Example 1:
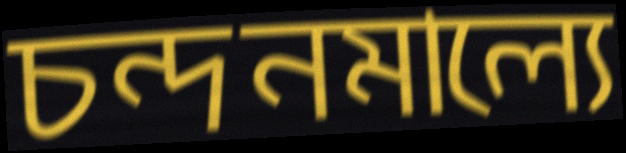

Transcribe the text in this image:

চন্দনমাল্যে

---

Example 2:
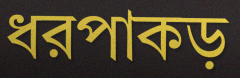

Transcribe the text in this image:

ধরপাকড়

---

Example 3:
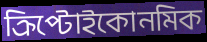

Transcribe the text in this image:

ক্রিপ্টোইকোনমিক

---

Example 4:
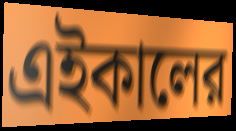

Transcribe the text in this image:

এইকালের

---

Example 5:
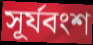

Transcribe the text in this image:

সূর্যবংশ